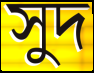
সুদ